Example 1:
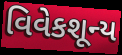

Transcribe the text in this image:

વિવેકશૂન્ય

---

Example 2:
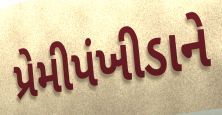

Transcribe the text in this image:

પ્રેમીપંખીડાને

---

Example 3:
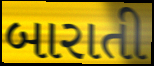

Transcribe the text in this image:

બારાતી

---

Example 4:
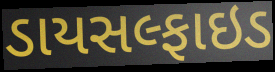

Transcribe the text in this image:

ડાયસલ્ફાઇડ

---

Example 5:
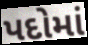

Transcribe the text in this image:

પદોમાં